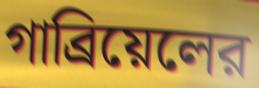
গাব্রিয়েলের